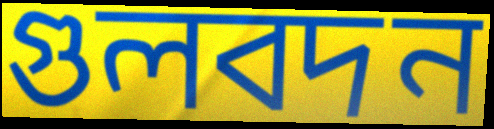
গুলবদন